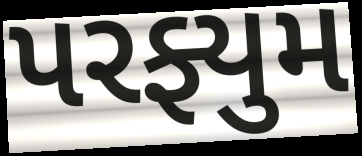
પરફ્યુમ